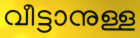
വീട്ടാനുള്ള